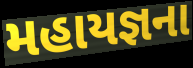
મહાયજ્ઞના